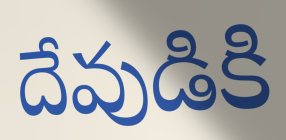
దేవుడికి